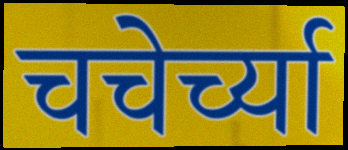
चचेर्च्या